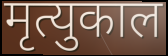
मृत्युकाल